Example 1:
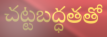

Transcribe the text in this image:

చట్టబద్ధతతో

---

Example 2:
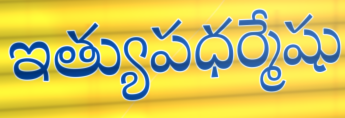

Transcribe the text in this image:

ఇత్యుపధర్మేషు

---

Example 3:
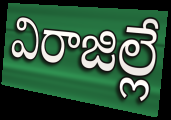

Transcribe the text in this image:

విరాజిల్లే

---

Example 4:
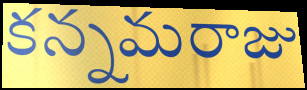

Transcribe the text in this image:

కన్నమరాజు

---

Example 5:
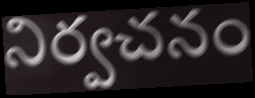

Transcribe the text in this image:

నిర్వచనం